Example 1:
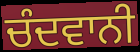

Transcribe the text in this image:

ਚੰਦਵਾਨੀ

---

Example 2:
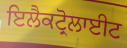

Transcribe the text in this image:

ਇਲੈਕਟ੍ਰੋਲਾਈਟ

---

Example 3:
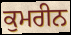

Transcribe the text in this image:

ਕੁਮਰੀਨ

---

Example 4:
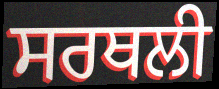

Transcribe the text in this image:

ਸਰਥਲੀ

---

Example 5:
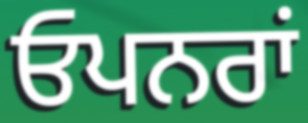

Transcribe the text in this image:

ਓਪਨਰਾਂ